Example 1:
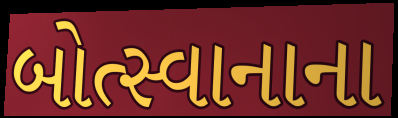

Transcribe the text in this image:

બોત્સ્વાનાના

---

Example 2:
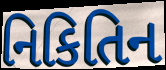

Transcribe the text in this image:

નિકિતિન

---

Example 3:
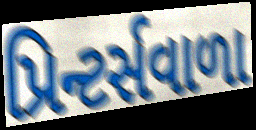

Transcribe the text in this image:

પ્રિન્ટર્સવાળા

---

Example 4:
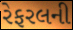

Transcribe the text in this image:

રેફરલની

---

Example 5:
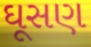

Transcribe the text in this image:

ઘૂસણ